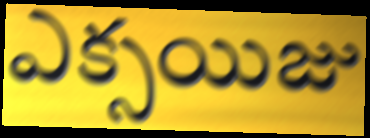
ఎక్సయిజు